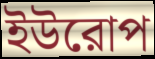
ইউরোপ